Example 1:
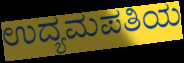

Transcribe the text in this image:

ಉದ್ಯಮಪತಿಯ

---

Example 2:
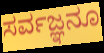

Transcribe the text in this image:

ಸರ್ವಜ್ಞನೂ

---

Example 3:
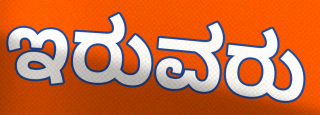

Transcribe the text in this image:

ಇರುವರು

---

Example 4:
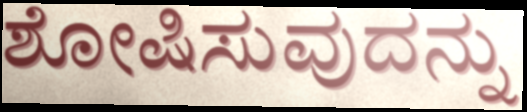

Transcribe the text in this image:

ಶೋಷಿಸುವುದನ್ನು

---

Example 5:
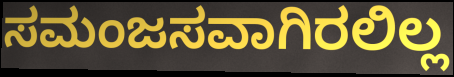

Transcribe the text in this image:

ಸಮಂಜಸವಾಗಿರಲಿಲ್ಲ